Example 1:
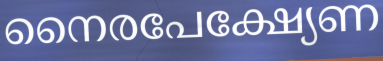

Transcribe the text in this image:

നൈരപേക്ഷ്യേണ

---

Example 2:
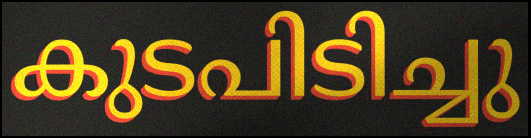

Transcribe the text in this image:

കുടപിടിച്ചു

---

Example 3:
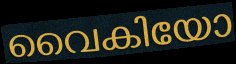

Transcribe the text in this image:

വൈകിയോ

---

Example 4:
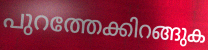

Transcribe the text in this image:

പുറത്തേക്കിറങ്ങുക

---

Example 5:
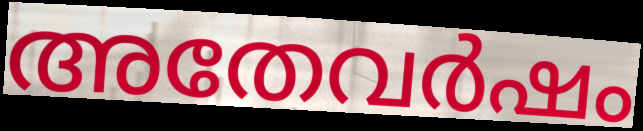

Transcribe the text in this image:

അതേവർഷം